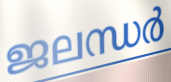
ജലന്ധർ